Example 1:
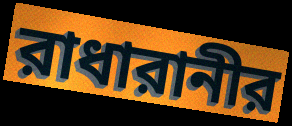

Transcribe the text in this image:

রাধারানীর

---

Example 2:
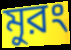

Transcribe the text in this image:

মুরং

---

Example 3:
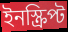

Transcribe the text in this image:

ইনস্ক্রিপ্ট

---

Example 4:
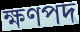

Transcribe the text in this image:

ক্ষণপদ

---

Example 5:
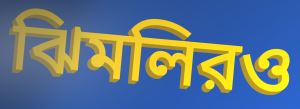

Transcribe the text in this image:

ঝিমলিরও